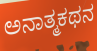
ಅನಾತ್ಮಕಥನ